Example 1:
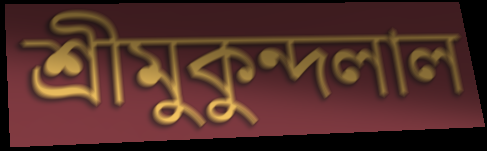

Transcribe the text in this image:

শ্রীমুকুন্দলাল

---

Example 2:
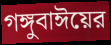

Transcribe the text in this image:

গঙ্গুবাঈয়ের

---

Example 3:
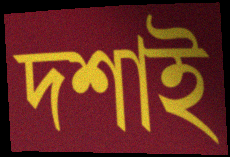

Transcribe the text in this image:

দশাই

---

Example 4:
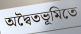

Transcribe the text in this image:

অদ্বৈতভূমিতে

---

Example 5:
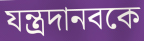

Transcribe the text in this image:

যন্ত্রদানবকে